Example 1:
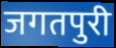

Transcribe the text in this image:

जगतपुरी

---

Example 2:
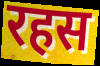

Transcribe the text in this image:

रहस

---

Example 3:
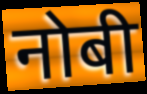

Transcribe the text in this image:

नोबी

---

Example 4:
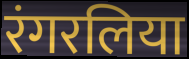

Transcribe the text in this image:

रंगरलिया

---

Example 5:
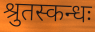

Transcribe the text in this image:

श्रुतस्कन्धः